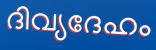
ദിവ്യദേഹം